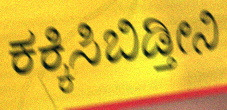
ಕಕ್ಕಿಸಿಬಿಡ್ತೀನಿ